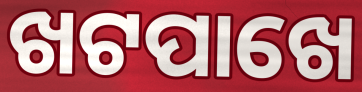
ଖଟପାଖେ